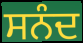
ਸਨੰਦ